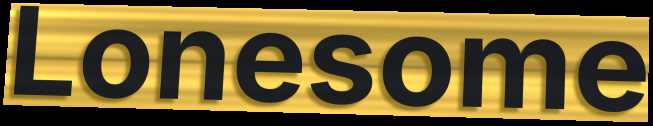
Lonesome